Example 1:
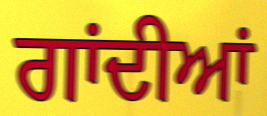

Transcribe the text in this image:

ਗਾਂਦੀਆਂ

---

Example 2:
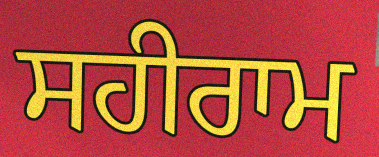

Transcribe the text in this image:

ਸਹੀਰਾਮ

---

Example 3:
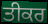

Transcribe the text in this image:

ਤੀਕਰ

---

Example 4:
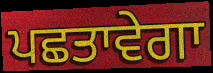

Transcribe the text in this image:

ਪਛਤਾਵੇਗਾ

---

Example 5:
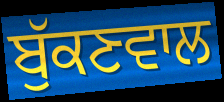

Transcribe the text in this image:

ਬੁੱਕਣਵਾਲ